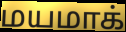
மயமாக்